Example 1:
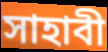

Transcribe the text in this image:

সাহাবী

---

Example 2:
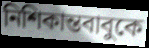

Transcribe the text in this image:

নিশিকান্তবাবুকে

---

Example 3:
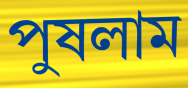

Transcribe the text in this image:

পুষলাম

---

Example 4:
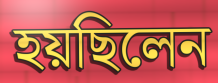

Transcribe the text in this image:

হয়ছিলেন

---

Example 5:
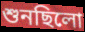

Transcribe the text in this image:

শুনছিলো